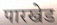
पारखेड